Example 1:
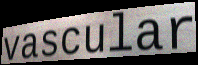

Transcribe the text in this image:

vascular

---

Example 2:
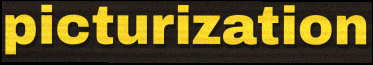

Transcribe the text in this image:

picturization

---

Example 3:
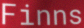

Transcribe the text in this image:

Finns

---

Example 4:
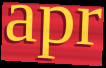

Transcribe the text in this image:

apr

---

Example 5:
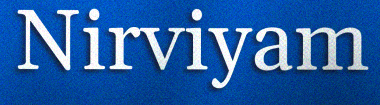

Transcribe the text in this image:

Nirviyam